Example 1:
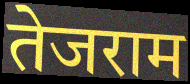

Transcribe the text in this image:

तेजराम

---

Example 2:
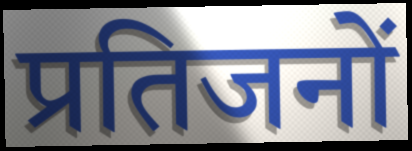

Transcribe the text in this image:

प्रतिजनों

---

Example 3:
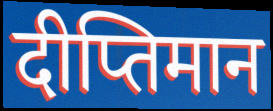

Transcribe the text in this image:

दीप्तिमान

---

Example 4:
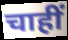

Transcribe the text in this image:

चाहीं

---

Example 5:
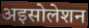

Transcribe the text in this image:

अइसोलेशन